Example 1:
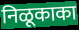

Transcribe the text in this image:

निळूकाका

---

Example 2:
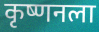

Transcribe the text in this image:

कृष्णनला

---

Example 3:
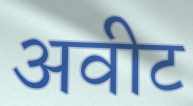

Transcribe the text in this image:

अवीट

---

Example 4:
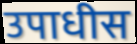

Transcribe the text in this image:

उपाधीस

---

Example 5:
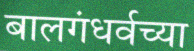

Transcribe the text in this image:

बालगंधर्वच्या